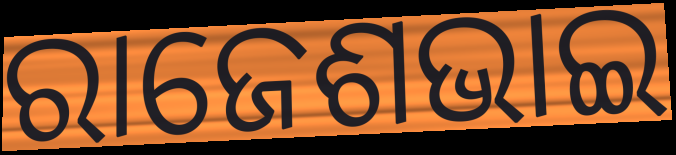
ରାଜେଶଭାଇ